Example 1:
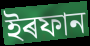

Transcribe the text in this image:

ইৰফান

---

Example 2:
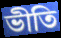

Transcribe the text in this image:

ভীতি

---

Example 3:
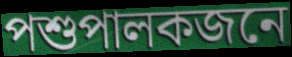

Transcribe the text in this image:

পশুপালকজনে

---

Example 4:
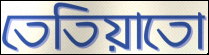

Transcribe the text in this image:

তেতিয়াতো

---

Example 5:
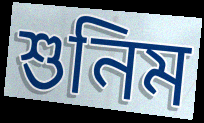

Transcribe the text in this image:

শুনিম